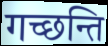
गच्छन्ति